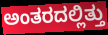
ಅಂತರದಲ್ಲಿತ್ತು